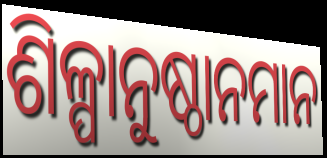
ଶିଳ୍ପାନୁଷ୍ଠାନମାନ